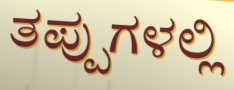
ತಪ್ಪುಗಳಲ್ಲಿ